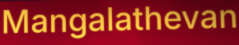
Mangalathevan